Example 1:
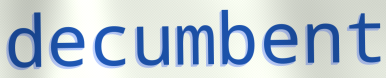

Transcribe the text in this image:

decumbent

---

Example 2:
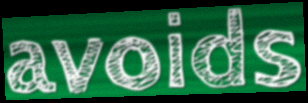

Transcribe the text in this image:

avoids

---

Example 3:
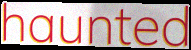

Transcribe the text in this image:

haunted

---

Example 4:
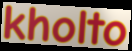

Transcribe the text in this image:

kholto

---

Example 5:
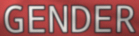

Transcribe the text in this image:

GENDER